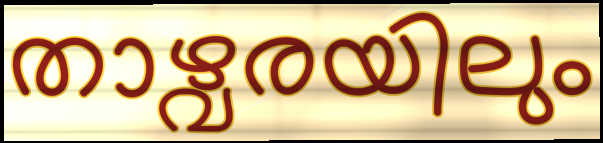
താഴ്വരയിലും